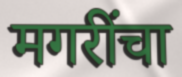
मगरींचा